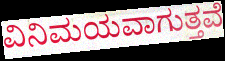
ವಿನಿಮಯವಾಗುತ್ತವೆ